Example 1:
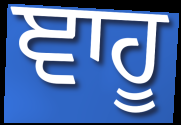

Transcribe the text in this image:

ਞਾਹੂ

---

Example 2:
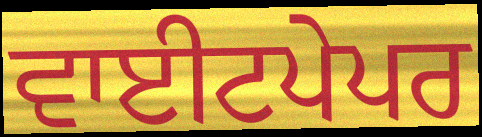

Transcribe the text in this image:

ਵਾਈਟਪੇਪਰ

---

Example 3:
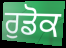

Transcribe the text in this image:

ਰੁਡੋਕ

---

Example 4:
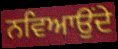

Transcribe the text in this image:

ਨਵਿਆਉਂਦੇ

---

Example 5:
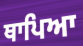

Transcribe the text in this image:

ਥਾਪਿਆ